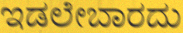
ಇಡಲೇಬಾರದು